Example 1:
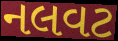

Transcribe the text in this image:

નલવટ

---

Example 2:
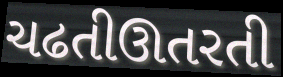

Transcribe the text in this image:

ચઢતીઊતરતી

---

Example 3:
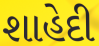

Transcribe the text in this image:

શાહેદી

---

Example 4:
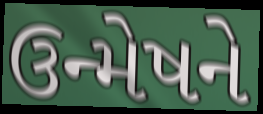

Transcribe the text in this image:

ઉન્મેષને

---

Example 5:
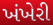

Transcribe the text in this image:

ખંખેરી